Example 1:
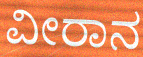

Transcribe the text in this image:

ವೀರಾನ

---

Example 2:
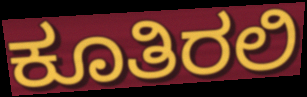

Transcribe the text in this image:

ಕೂತಿರಲಿ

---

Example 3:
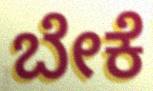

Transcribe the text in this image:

ಬೇಕೆ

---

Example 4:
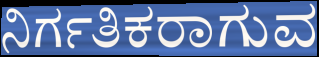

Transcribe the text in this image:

ನಿರ್ಗತಿಕರಾಗುವ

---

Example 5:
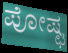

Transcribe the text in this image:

ಪೋಷ್ಟ